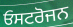
ਓਸਟਰੋਜਨ